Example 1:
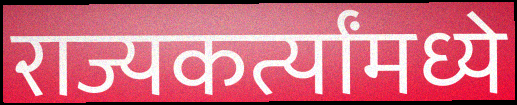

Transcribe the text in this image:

राज्यकर्त्यांमध्ये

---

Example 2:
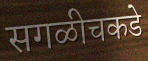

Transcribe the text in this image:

सगळीचकडे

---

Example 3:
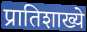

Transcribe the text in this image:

प्रातिशाख्ये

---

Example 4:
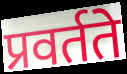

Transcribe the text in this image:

प्रवर्तते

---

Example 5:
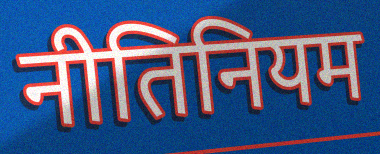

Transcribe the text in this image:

नीतिनियम